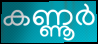
കണ്ണൂർ